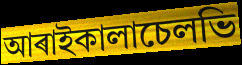
আৰাইকালাচেলভি